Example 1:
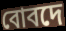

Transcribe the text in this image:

বোবদে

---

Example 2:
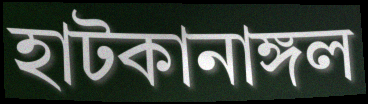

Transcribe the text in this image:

হাটকানাঙ্গল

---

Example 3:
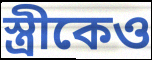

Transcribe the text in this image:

স্ত্রীকেও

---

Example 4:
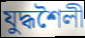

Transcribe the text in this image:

যুদ্ধশৈলী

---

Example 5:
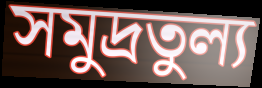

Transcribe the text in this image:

সমুদ্রতুল্য